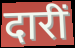
दारीं